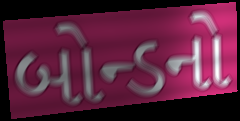
બોન્ડનો